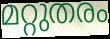
മറ്റുതരം